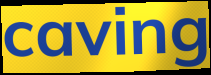
caving